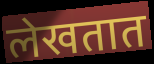
लेखतात